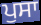
ਪੁਸਾ